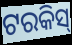
ଟରକିସ୍